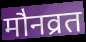
मौनव्रत